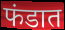
फंडात